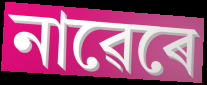
নাৱেৰে